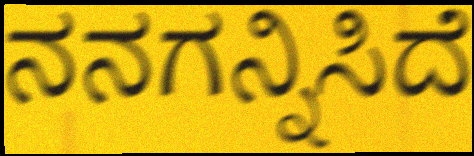
ನನಗನ್ನಿಸಿದೆ